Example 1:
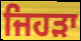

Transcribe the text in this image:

ਜਿਹੜਾ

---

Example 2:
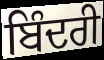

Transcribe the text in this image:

ਬਿੰਦਰੀ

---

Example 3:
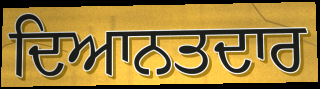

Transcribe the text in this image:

ਦਿਆਨਤਦਾਰ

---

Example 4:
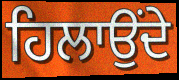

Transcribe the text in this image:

ਹਿਲਾਉਂਦੇ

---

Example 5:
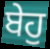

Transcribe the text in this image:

ਬੇਹੁ